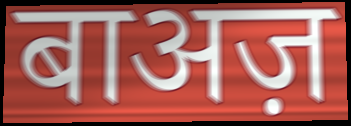
बाअज़